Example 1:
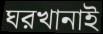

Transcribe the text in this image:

ঘরখানাই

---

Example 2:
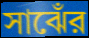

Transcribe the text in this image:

সাঝেঁর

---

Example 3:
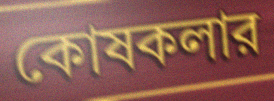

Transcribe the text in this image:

কোষকলার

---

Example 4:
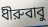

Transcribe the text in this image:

ধীরুবাবু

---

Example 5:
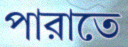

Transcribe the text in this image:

পারাতে